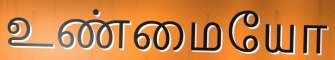
உண்மையோ